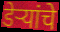
डेर्‍यांचे